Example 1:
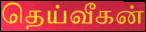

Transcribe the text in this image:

தெய்வீகன்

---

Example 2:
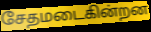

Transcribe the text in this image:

சேதமடைகின்றன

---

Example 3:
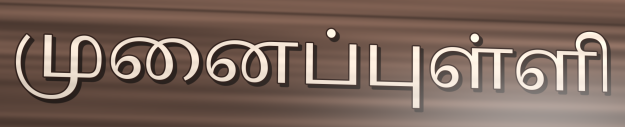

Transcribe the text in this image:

முனைப்புள்ளி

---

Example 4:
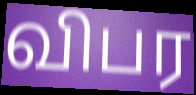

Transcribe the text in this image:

விபர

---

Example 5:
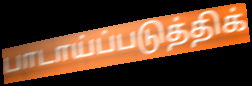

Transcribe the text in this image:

பாடாய்ப்படுத்திக்